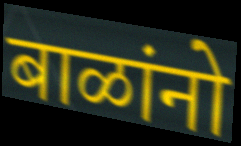
बाळांनो